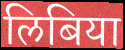
लिबिया